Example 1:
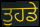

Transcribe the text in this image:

ਤੁਹਡੇ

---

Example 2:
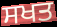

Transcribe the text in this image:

ਸਖਤ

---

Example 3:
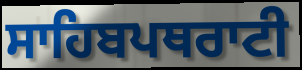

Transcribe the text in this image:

ਸਾਹਿਬਪਥਰਾਟੀ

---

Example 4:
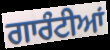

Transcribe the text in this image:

ਗਾਰੰਟੀਆਂ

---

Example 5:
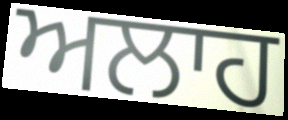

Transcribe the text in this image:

ਅਲਾਹ